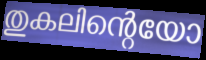
തുകലിന്റെയോ